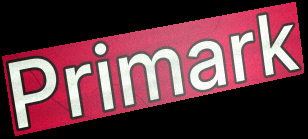
Primark